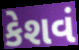
કેશવં